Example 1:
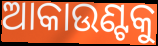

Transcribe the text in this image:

ଆକାଉଣ୍ଟକୁ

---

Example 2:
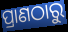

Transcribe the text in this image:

ପ୍ରାଣଠାରୁ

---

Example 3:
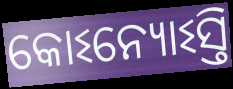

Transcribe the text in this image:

କୋଽନ୍ୟୋଽସ୍ତି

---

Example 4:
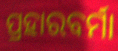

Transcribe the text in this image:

ପ୍ରହାରବର୍ମା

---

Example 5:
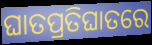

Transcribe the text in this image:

ଘାତପ୍ରତିଘାତରେ